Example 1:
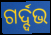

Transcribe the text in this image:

ଗର୍ଦ୍ଦଭ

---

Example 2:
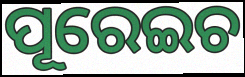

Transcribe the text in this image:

ପୂରେଇଚ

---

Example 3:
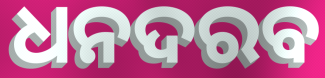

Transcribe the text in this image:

ଧନଦରବ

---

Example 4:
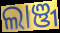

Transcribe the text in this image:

ଲାଞ୍ଜ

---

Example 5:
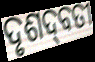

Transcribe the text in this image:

ଦୃଶଦ୍‌ବତୀ